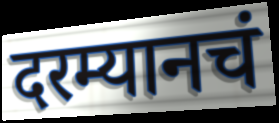
दरम्यानचं